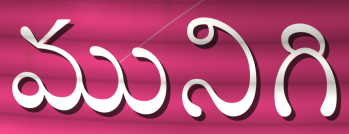
మునిగి